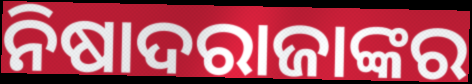
ନିଷାଦରାଜାଙ୍କର